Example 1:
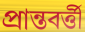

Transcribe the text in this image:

প্রান্তবর্ত্তী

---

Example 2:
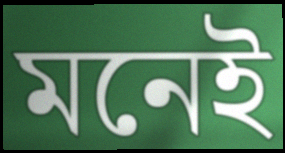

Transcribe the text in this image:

মনেই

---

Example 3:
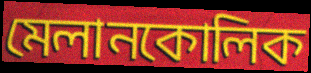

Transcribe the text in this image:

মেলানকোলিক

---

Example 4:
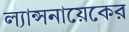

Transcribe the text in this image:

ল্যান্সনায়েকের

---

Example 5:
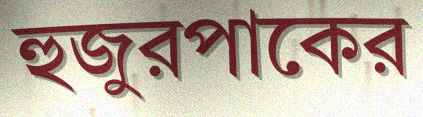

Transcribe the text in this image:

হুজুরপাকের